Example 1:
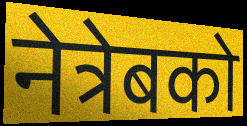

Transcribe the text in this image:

नेत्रेबको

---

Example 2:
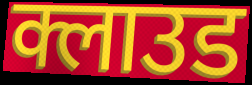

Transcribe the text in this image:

क्‍लाउड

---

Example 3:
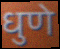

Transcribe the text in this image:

धुणे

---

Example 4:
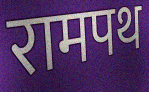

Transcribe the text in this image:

रामपथ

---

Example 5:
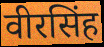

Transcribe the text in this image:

वीरसिंह